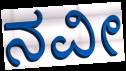
ನವೀ